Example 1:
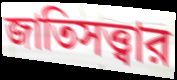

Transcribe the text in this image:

জাতিসত্ত্বার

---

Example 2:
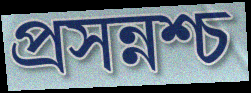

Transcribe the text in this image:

প্রসন্নশ্চ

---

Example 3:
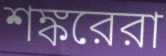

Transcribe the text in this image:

শঙ্করেরা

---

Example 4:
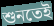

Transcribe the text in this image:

শুনতেই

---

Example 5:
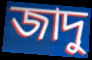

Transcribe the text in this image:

জাদু